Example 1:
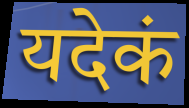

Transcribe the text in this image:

यदेकं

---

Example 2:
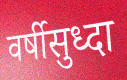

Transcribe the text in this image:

वर्षीसुध्दा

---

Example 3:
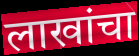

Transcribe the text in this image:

लाखांचा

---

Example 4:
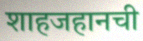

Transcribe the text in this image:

शाहजहानची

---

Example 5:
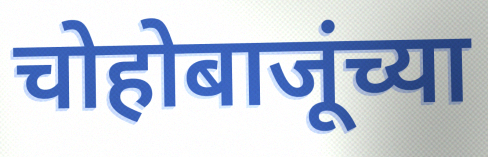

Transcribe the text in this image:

चोहोबाजूंच्या